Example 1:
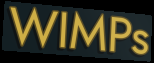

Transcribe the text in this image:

WIMPs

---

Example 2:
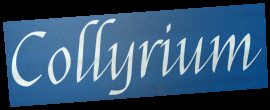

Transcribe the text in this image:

Collyrium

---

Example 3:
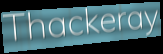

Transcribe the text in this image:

Thackeray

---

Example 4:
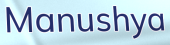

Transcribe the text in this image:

Manushya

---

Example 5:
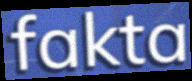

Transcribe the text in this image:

fakta